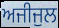
ਅਜੀਜੁਲ